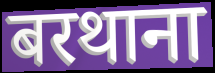
बरथाना